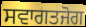
ਸਵਾਗਤਜੋਗ